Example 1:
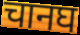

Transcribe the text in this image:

चानघ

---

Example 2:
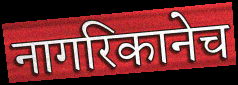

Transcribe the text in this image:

नागरिकानेच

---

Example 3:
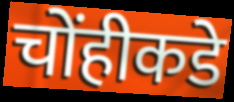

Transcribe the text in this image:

चोंहीकडे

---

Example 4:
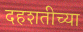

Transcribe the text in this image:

दहशतीच्या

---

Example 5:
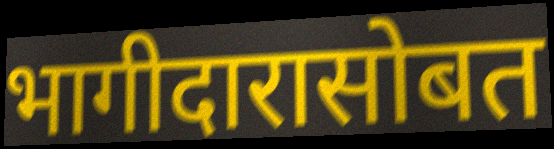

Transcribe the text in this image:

भागीदारासोबत